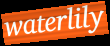
waterlily